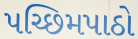
પચ્છિમપાઠો